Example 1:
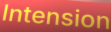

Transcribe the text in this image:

Intension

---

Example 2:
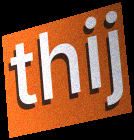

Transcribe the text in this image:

thij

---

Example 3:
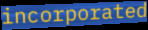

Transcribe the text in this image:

incorporated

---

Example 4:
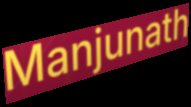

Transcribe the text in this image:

Manjunath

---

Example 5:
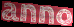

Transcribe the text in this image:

anno